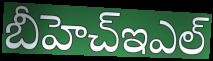
బీహెచ్ఇఎల్